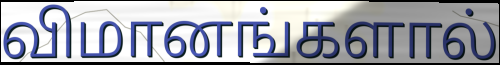
விமானங்களால்